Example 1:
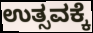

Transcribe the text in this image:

ಉತ್ಸವಕ್ಕೆ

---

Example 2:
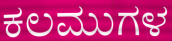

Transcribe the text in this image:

ಕಲಮುಗಳ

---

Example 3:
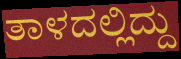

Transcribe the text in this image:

ತಾಳದಲ್ಲಿದ್ದು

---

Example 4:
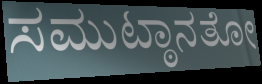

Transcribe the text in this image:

ಸಮುಟ್ಠಾನತೋ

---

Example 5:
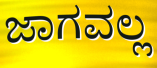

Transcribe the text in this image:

ಜಾಗವಲ್ಲ